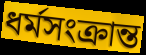
ধর্মসংক্রান্ত